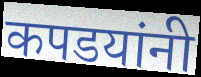
कपडयांनी